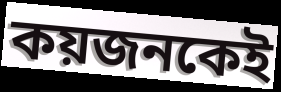
কয়জনকেই